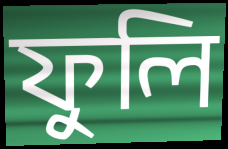
ফুলি